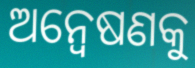
ଅନ୍ବେଷଣକୁ